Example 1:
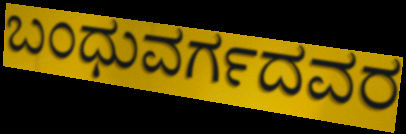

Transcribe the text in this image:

ಬಂಧುವರ್ಗದವರ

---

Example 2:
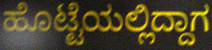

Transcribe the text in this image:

ಹೊಟ್ಟೆಯಲ್ಲಿದ್ದಾಗ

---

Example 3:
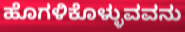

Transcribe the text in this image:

ಹೊಗಳಿಕೊಳ್ಳುವವನು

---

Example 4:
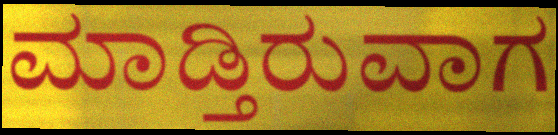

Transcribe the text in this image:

ಮಾಡ್ತಿರುವಾಗ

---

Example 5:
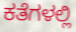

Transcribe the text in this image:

ಕತೆಗಳಲ್ಲಿ